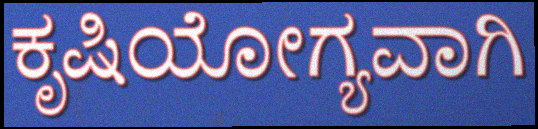
ಕೃಷಿಯೋಗ್ಯವಾಗಿ